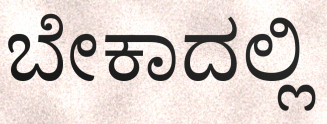
ಬೇಕಾದಲ್ಲಿ